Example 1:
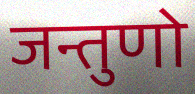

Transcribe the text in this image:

जन्तुणो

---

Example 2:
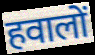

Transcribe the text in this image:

हवालों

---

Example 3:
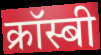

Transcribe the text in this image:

क्रॉस्बी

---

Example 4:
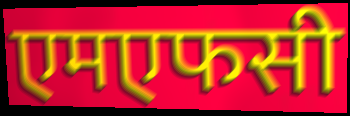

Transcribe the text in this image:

एमएफसी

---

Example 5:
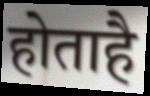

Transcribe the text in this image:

होताहै